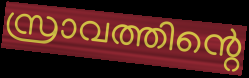
സ്രാവത്തിന്റെ